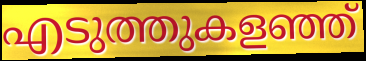
എടുത്തുകളഞ്ഞ്